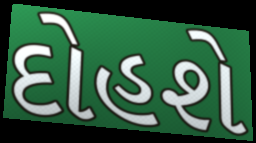
દોહશે